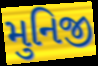
મુનિજી